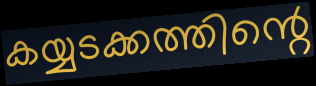
കയ്യടക്കത്തിന്റെ